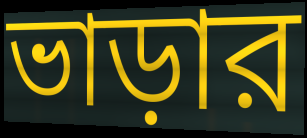
ভাড়ার